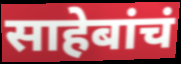
साहेबांचं